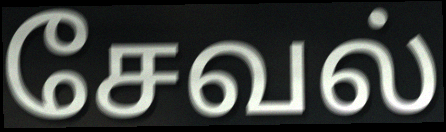
சேவல்